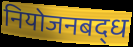
नियोजनबद्ध